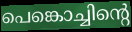
പെങ്കൊച്ചിന്റെ